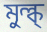
মুল্ক্